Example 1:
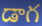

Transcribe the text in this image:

డాగ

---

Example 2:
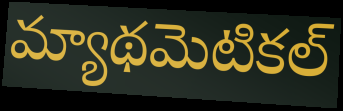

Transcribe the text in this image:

మ్యాథమెటికల్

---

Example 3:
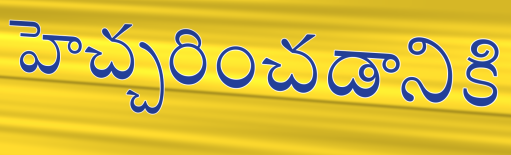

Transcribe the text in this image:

హెచ్చరించడానికి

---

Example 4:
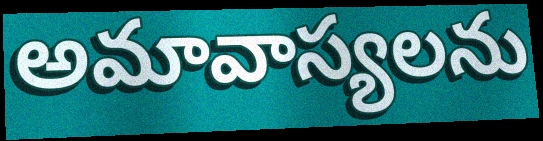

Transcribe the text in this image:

అమావాస్యలను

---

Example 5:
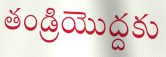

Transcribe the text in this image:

తండ్రియొద్దకు